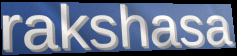
rakshasa